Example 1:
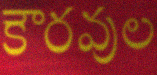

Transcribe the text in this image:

కౌరవుల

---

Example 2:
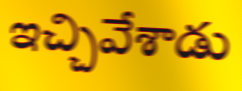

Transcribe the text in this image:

ఇచ్చివేశాడు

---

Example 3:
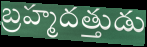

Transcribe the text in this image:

బ్రహ్మదత్తుడు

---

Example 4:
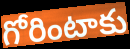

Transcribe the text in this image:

గోరింటాకు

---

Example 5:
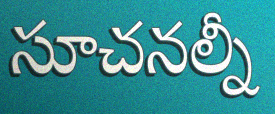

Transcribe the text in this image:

సూచనల్నీ